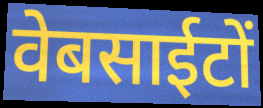
वेबसाईटों